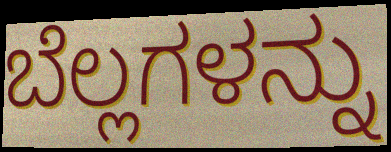
ಬೆಲ್ಲಗಳನ್ನು